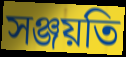
সঞ্জয়তি